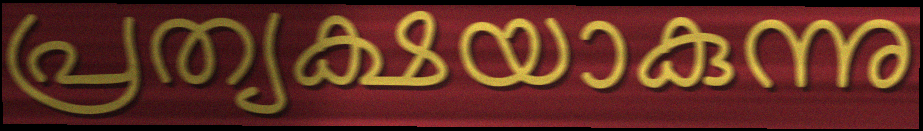
പ്രത്യക്ഷയാകുന്നു